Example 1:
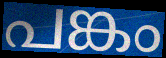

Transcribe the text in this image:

പങ്കം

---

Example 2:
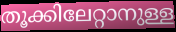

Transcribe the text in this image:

തൂക്കിലേറ്റാനുള്ള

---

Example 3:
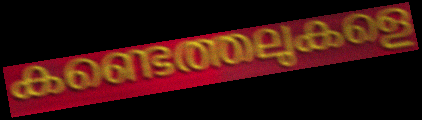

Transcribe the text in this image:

കണ്ടെത്തലുകളെ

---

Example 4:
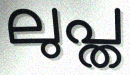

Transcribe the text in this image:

ലുപ്ത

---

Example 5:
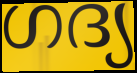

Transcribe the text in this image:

ഗദ്യ